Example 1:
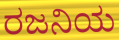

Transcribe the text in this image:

ರಜನಿಯ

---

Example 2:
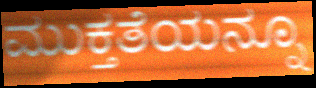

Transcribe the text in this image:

ಮುಕ್ತತೆಯನ್ನೂ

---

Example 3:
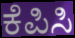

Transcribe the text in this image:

ಕೆಪಿಸಿ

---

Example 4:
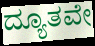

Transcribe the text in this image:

ದ್ಯೂತವೇ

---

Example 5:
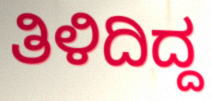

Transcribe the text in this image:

ತಿಳಿದಿದ್ದ